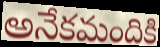
అనేకమందికి